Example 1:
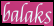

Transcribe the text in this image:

balaks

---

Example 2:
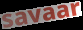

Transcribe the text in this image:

savaar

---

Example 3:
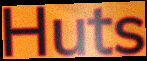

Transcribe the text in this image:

Huts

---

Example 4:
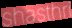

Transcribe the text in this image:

shasthri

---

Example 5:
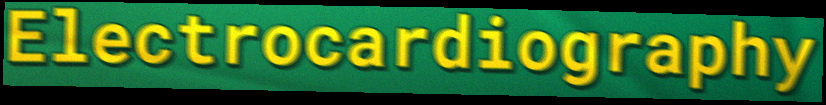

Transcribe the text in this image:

Electrocardiography